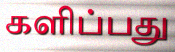
களிப்பது